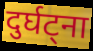
दुर्घट्ना